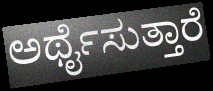
ಅರ್ಥೈಸುತ್ತಾರೆ